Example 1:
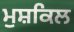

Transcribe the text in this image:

ਮੁਸ਼ਕਿਲ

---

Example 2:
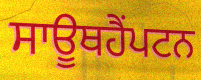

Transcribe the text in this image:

ਸਾਊਥਹੈਂਪਟਨ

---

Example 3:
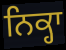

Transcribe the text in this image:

ਨਿਕ੍ਹਾ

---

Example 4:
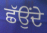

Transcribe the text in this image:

ਛੱਉਂਦੇ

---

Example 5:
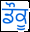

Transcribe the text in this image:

ਡੌਕੂ